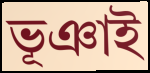
ভূঞাই